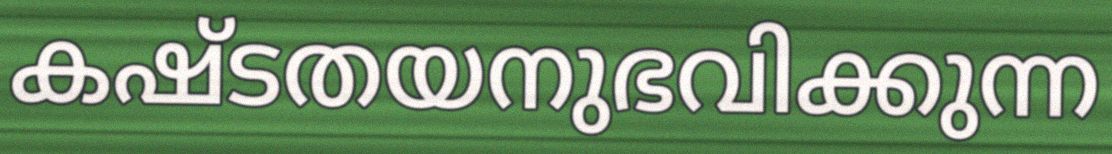
കഷ്ടതയനുഭവിക്കുന്ന